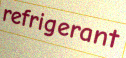
refrigerant